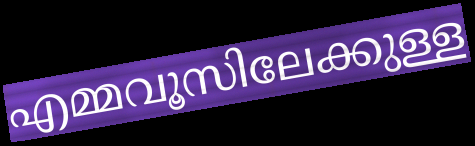
എമ്മവൂസിലേക്കുള്ള